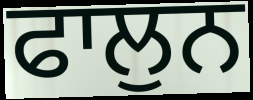
ਫਾਲੁਨ